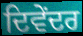
ਦਿਵੇਂਦਰ